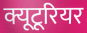
क्यूटूरियर